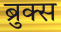
ब्रुक्‍स